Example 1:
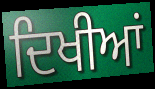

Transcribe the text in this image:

ਦਿਖੀਆਂ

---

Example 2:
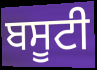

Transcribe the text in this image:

ਬਸੂਟੀ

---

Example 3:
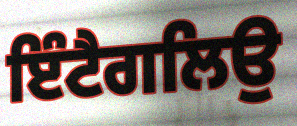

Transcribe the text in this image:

ਇੰਟੈਗਲਿਉ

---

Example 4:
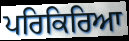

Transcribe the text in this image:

ਪਰਿਕਿਰਿਆ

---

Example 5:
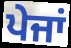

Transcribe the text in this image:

ਪੇਜਾਂ